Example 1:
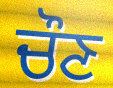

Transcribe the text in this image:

ਚੌਣ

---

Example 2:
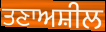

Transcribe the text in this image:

ਤਣਾਅਸ਼ੀਲ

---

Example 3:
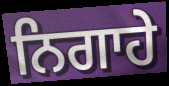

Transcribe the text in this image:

ਨਿਗਾਹੇ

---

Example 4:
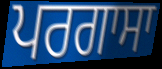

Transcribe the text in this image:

ਪਰਗਾਸਾ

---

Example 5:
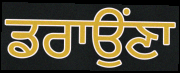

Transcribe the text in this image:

ਡਰਾਉਂਣਾ